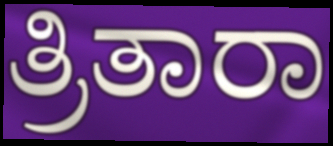
ತ್ರಿತಾರಾ